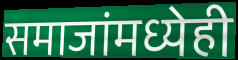
समाजांमध्येही